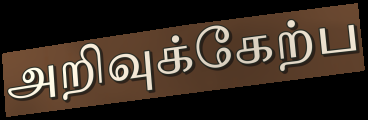
அறிவுக்கேற்ப